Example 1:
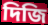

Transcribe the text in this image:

দিজি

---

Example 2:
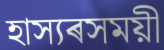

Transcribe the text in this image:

হাস্যৰসময়ী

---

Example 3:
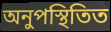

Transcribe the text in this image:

অনুপস্থিতিত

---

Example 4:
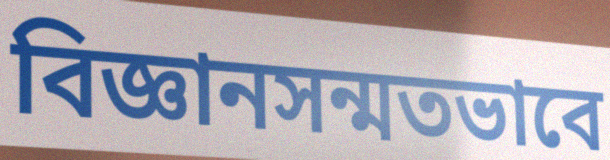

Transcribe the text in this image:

বিজ্ঞানসন্মতভাবে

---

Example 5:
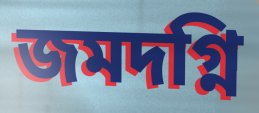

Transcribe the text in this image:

জমদগ্নি